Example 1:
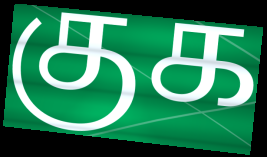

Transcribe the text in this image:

குக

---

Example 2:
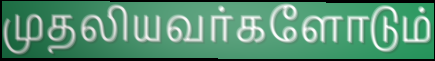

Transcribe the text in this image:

முதலியவர்களோடும்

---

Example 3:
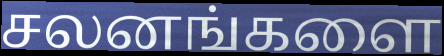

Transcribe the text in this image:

சலனங்களை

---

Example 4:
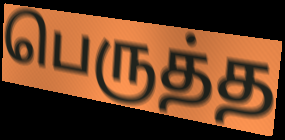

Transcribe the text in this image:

பெருத்த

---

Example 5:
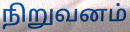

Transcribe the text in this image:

நிறுவனம்